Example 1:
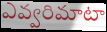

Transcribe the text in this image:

ఎవ్వరిమాటా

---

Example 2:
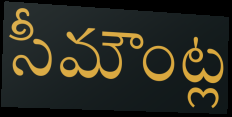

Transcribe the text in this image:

సీమౌంట్ల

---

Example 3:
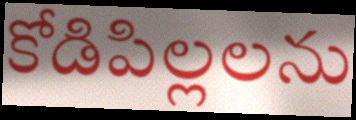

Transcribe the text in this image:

కోడిపిల్లలను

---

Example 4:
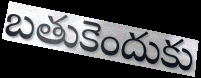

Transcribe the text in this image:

బతుకెందుకు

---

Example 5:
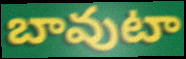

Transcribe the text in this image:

బావుటా